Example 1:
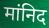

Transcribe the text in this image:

मांनिद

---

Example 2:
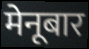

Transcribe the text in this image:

मेनूबार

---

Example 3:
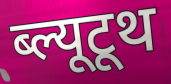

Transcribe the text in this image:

ब्ल्यूटूथ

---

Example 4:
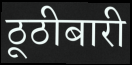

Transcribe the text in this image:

ठूठीबारी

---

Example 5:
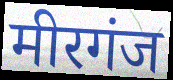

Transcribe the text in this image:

मीरगंज